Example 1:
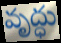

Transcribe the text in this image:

వృద్ధు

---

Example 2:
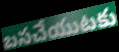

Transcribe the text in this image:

బసచేయుటకు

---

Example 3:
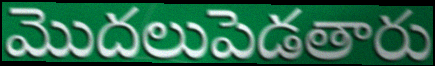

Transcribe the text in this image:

మొదలుపెడతారు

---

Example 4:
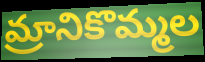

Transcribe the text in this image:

మ్రానికొమ్మల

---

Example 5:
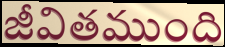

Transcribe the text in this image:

జీవితముంది